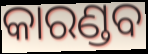
କାରଣ୍ଡବ